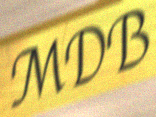
MDB